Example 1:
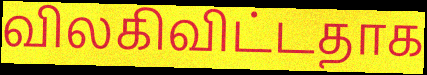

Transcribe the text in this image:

விலகிவிட்டதாக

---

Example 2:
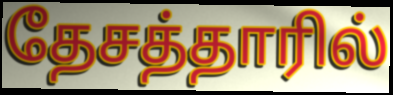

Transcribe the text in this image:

தேசத்தாரில்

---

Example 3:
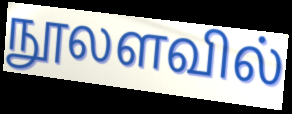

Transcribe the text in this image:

நூலளவில்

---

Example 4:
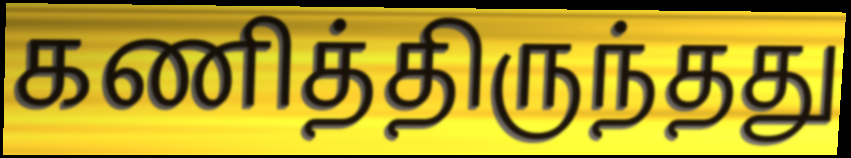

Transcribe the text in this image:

கணித்திருந்தது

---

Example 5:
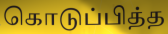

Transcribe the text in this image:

கொடுப்பித்த